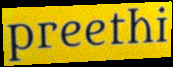
preethi